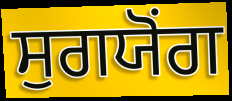
ਸੁਗਯੋਂਗ